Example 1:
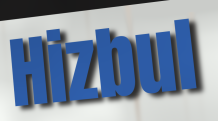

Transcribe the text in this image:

Hizbul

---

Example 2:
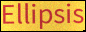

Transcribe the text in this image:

Ellipsis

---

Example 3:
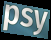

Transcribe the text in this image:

psy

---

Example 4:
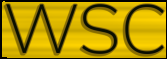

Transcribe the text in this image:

WSC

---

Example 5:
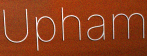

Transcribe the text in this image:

Upham